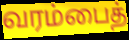
வரம்பைத்